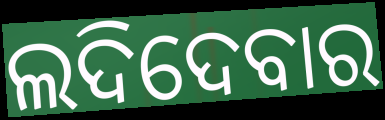
ଲଦିଦେବାର